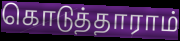
கொடுத்தாராம்